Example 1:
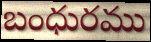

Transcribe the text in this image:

బంధురము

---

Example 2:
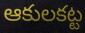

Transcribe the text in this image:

ఆకులకట్ట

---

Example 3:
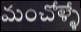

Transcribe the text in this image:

మంచోళ్ళే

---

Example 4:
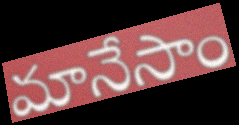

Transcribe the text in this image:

మానేసాం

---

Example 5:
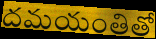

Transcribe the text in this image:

దమయంతితో